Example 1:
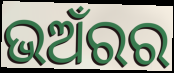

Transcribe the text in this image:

ଭଅଁରର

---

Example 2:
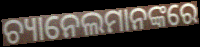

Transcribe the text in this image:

ଚ୍ୟାନେଲମାନଙ୍କରେ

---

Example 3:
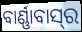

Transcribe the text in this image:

ବାର୍ଣ୍ଣାବାସ୍‌ର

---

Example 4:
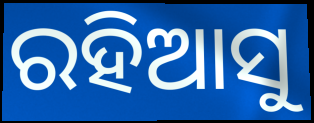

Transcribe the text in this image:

ରହିଆସୁ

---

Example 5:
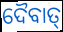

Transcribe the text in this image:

ଦୈବାତ୍